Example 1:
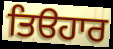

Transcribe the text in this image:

ਤਿੳਹਾਰ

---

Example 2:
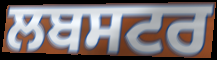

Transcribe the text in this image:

ਲਬਸਟਰ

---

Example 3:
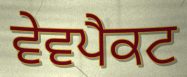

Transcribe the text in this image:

ਵੇਵਪੈਕਟ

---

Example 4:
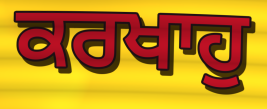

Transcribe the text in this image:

ਕਰਖਾਹੁ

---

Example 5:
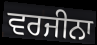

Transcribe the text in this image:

ਵਰਜੀਨਾ